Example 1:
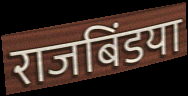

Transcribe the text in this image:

राजबिंडया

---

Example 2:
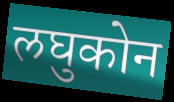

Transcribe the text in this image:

लघुकोन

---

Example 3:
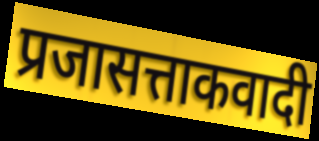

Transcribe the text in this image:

प्रजासत्ताकवादी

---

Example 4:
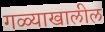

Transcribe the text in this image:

गळ्याखालील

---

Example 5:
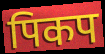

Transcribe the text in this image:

पिकप